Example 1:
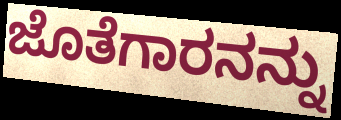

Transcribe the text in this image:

ಜೊತೆಗಾರನನ್ನು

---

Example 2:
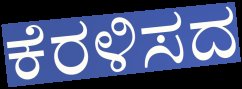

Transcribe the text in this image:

ಕೆರಳಿಸದ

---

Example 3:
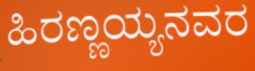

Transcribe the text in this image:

ಹಿರಣ್ಣಯ್ಯನವರ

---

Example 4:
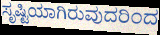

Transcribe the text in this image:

ಸೃಷ್ಟಿಯಾಗಿರುವುದರಿಂದ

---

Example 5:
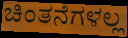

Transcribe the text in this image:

ಚಿಂತನೆಗಳಲ್ಲ